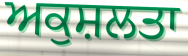
ਅਕੁਸ਼ਲਤਾ